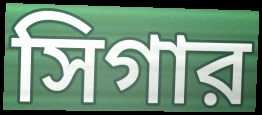
সিগার